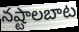
నష్టాలబాట